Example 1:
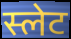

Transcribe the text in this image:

स्लेट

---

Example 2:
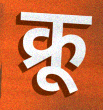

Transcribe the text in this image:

क्रू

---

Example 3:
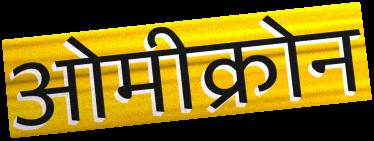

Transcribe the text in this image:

ओमीक्रोन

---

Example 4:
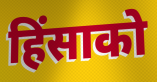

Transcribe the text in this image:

हिंसाको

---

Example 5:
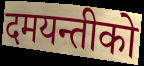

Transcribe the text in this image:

दमयन्तीको